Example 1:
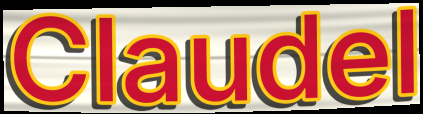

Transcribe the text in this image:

Claudel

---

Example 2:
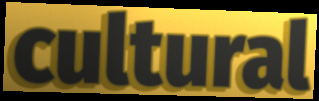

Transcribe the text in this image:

cultural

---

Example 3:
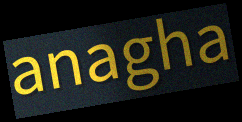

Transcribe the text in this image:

anagha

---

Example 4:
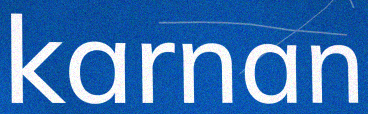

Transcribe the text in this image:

karnan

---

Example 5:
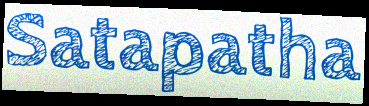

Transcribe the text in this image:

Satapatha